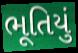
ભૂતિયું